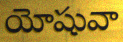
యోషువా